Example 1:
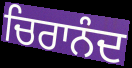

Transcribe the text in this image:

ਚਿਰਾਨੰਦ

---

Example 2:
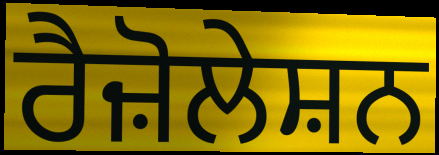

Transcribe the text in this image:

ਰੈਜ਼ੋਲੇਸ਼ਨ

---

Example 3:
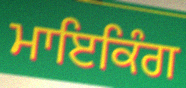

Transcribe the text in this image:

ਮਾਇਕਿੰਗ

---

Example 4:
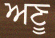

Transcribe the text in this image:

ਅਣੂ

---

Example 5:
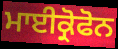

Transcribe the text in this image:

ਮਾਈਕ੍ਰੋਫੋਨ